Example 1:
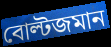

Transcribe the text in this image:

বোল্টজমান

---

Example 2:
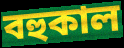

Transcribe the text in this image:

বহুকাল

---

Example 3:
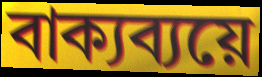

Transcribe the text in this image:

বাক্যব্যয়ে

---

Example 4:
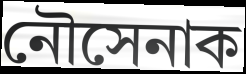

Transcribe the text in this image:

নৌসেনাক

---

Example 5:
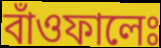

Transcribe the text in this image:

বাঁওফালেঃ